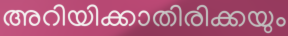
അറിയിക്കാതിരിക്കയും